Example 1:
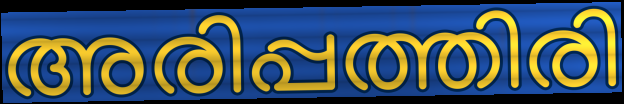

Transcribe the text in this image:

അരിപ്പത്തിരി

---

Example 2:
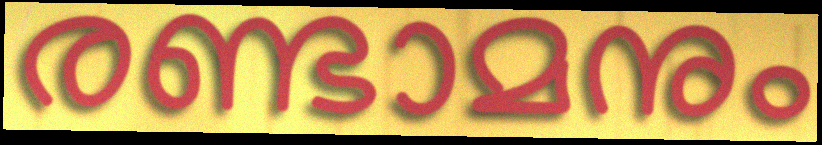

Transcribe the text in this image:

രണ്ടാമനും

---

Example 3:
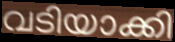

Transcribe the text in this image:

വടിയാക്കി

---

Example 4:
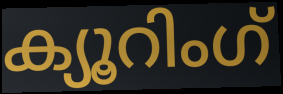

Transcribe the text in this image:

ക്യൂറിംഗ്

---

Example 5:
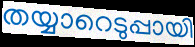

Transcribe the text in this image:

തയ്യാറെടുപ്പായി